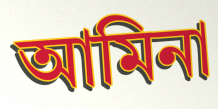
আমিনা